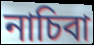
নাচিবা